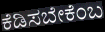
ಕೆಡಿಸಬೇಕೆಂಬ